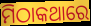
ମିଠାକଥାରେ